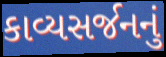
કાવ્યસર્જનનું